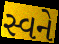
સ્વને